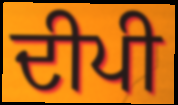
ਦੀਪੀ